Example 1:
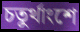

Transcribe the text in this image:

চতুর্থাংশে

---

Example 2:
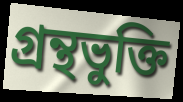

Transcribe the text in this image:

গ্রন্থভুক্তি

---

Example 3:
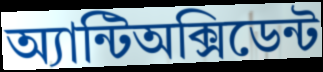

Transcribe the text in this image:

অ্যান্টিঅক্সিডেন্ট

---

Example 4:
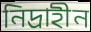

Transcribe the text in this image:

নিদ্রাহীন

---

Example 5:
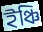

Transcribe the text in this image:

ইঞ্চি